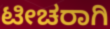
ಟೀಚರಾಗಿ